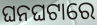
ଘନଘଟାରେ